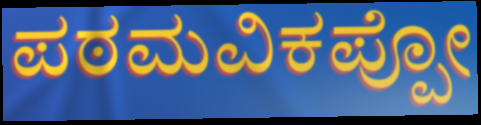
ಪಠಮವಿಕಪ್ಪೋ